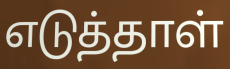
எடுத்தாள்